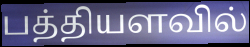
பத்தியளவில்